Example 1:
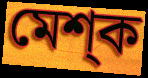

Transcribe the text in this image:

মেশ্ক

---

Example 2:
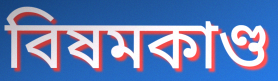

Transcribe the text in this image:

বিষমকাণ্ড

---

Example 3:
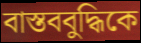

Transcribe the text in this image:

বাস্তববুদ্ধিকে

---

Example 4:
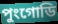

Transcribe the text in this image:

পুংগোডি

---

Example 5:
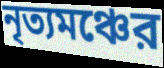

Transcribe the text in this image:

নৃত্যমঞ্চের